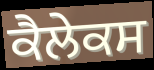
ਕੈਲੇਕਸ